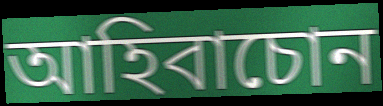
আহিবাচোন